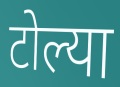
टोल्या